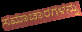
ಸಮಾಚಾರಗಳನ್ನು